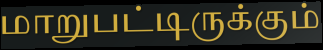
மாறுபட்டிருக்கும்